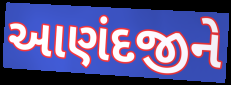
આણંદજીને